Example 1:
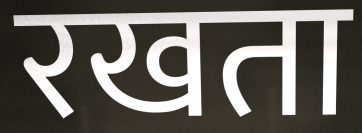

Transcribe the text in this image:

रखता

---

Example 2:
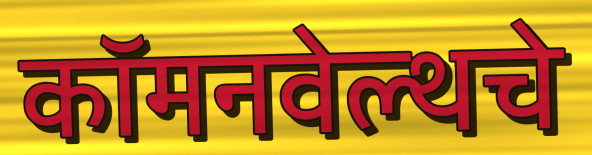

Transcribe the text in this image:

कॉमनवेल्थचे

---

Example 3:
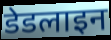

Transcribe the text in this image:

डेडलाइन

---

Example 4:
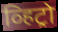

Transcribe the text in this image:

व्हिट्रो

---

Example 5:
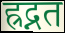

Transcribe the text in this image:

ह्रद्नत